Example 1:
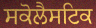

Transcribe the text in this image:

ਸਕੋਲੈਸਟਿਕ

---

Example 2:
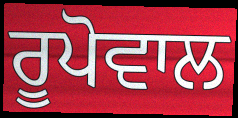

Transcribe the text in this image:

ਰੂਪੋਵਾਲ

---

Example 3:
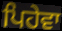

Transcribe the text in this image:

ਪਿਹੇਵਾ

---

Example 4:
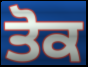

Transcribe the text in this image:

ਤੋਕ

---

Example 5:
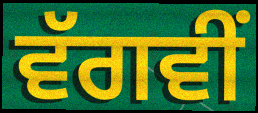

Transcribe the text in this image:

ਵੱਗਵੀਂ